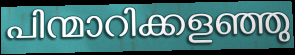
പിന്മാറിക്കളഞ്ഞു